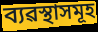
ব্যৱস্থাসমূহ